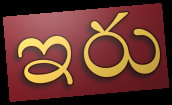
ఇరు